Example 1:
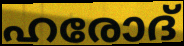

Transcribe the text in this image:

ഹരോദ്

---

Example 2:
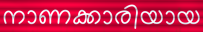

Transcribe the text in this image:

നാണക്കാരിയായ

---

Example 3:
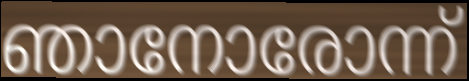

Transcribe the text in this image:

ഞാനോരോന്ന്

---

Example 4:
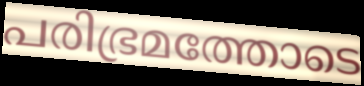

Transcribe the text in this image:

പരിഭ്രമത്തോടെ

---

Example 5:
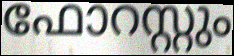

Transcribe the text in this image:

ഫോറസ്റ്റും